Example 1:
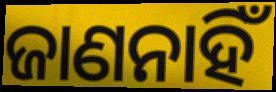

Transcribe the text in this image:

ଜାଣନାହିଁ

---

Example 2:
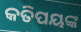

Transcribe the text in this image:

କତିପୟଙ୍କ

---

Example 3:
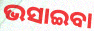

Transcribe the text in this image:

ଭସାଇବା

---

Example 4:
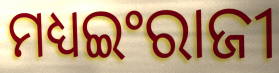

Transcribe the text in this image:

ମଧ୍ୟଇଂରାଜୀ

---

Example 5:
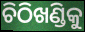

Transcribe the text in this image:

ଚିଠିଖଣ୍ଡିକୁ